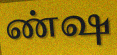
ண்ஷ